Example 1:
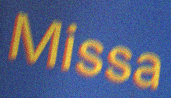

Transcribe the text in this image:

Missa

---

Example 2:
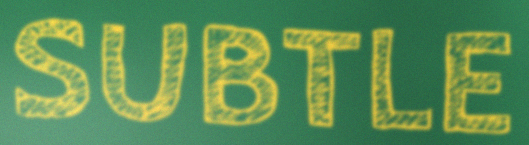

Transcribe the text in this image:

SUBTLE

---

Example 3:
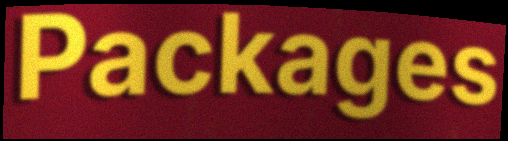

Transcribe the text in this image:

Packages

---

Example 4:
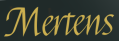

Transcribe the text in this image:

Mertens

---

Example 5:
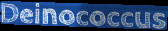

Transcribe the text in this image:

Deinococcus